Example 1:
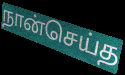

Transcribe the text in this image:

நான்செய்த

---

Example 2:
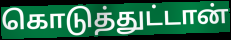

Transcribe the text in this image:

கொடுத்துட்டான்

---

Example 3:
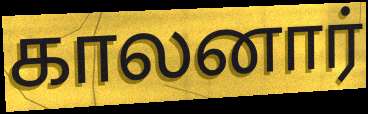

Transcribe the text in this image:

காலனார்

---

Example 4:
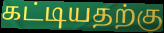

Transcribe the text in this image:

கட்டியதற்கு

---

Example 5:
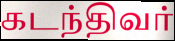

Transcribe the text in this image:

கடந்திவர்